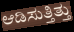
ಆಡಿಸುತ್ತಿತ್ತು